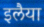
इलैया